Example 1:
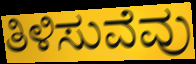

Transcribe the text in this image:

ತಿಳಿಸುವೆವು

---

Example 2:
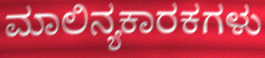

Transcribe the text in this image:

ಮಾಲಿನ್ಯಕಾರಕಗಳು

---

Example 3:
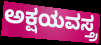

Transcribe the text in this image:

ಅಕ್ಷಯವಸ್ತ್ರ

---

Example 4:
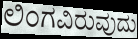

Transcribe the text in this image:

ಲಿಂಗವಿರುವುದು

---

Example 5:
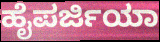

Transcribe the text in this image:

ಹೈಪರ್ಜಿಯಾ